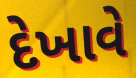
દેખાવે